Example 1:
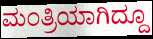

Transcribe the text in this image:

ಮಂತ್ರಿಯಾಗಿದ್ದೂ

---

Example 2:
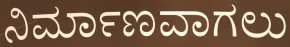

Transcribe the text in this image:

ನಿರ್ಮಾಣವಾಗಲು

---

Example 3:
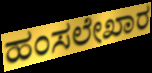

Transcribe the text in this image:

ಹಂಸಲೇಖಾರ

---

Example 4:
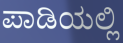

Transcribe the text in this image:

ಪಾಡಿಯಲ್ಲಿ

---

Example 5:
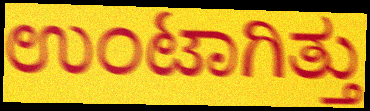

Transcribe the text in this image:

ಉಂಟಾಗಿತ್ತು